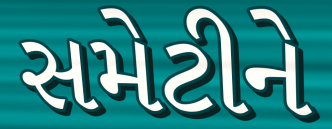
સમેટીને